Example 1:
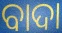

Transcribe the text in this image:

ବାଦା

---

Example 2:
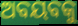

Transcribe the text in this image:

ଅବୟବକୁ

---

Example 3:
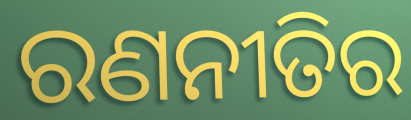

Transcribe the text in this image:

ରଣନୀତିର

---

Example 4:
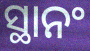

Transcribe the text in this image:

ସ୍ଥାନଂ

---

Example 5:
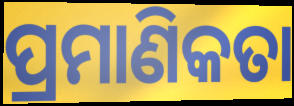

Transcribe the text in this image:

ପ୍ରମାଣିକତା